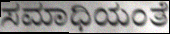
ಸಮಾಧಿಯಂತೆ